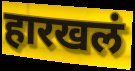
हारखलं